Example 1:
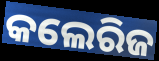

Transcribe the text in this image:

କଲେରିଜ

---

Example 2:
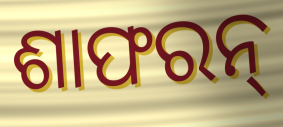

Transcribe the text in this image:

ଶାଫରନ୍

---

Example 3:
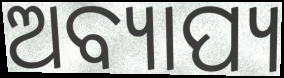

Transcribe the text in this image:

ଅବ୍ୟାପ୍ୟ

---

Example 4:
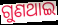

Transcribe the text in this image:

ଗୁଣଥାଇ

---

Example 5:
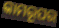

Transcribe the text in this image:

କାମରୂପର